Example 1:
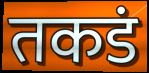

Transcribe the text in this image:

तकडं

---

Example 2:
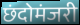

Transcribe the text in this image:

छंदोमंजरी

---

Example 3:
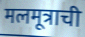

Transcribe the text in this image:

मलमूत्राची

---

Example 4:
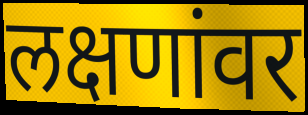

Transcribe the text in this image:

लक्षणांवर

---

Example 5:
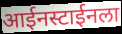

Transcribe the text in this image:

आईनस्टाईनला